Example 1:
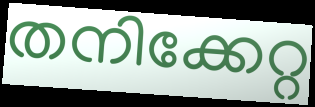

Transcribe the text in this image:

തനിക്കേറ്റ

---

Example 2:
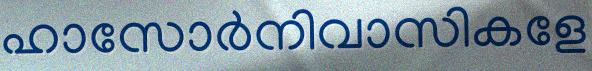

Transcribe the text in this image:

ഹാസോർനിവാസികളേ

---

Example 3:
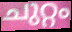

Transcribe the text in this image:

ചുറ്റം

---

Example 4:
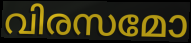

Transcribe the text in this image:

വിരസമോ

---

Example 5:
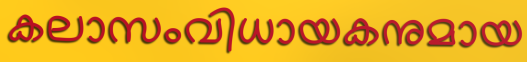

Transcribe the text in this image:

കലാസംവിധായകനുമായ